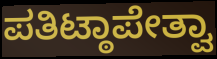
ಪತಿಟ್ಠಾಪೇತ್ವಾ